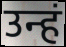
उन्हं